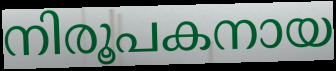
നിരൂപകനായ